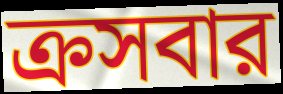
ক্রসবার